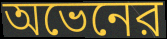
অভেনের